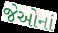
જેઓનાં